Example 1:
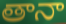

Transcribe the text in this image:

తానా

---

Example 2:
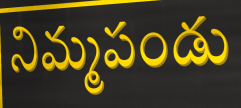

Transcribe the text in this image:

నిమ్మపండు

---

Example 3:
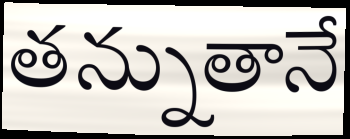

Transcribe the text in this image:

తన్నుతానే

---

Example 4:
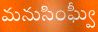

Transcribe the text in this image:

మనుసింఘ్వీ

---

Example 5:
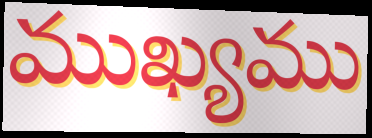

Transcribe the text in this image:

ముఖ్యము